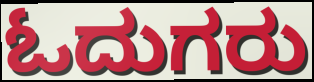
ಓದುಗರು